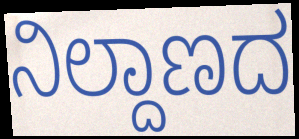
ನಿಲ್ದಾಣದ